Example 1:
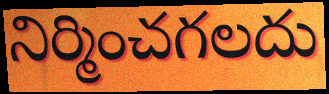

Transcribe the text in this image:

నిర్మించగలదు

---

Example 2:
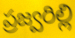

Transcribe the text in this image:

ప్రజ్వరిల్లి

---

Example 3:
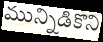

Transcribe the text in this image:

మున్నిడికొని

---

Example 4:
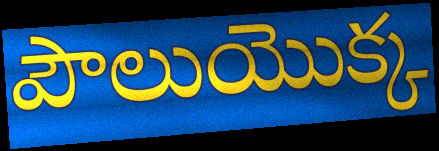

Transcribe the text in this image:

పౌలుయొక్క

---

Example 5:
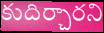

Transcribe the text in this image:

కుదిర్చారని